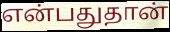
என்பதுதான்